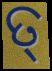
ତ୍